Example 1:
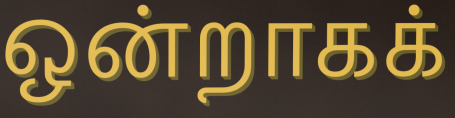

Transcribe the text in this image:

ஒன்றாகக்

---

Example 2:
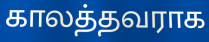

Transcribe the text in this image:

காலத்தவராக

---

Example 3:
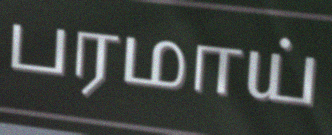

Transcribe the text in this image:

பரமாய்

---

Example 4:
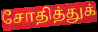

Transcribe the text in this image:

சோதித்துக்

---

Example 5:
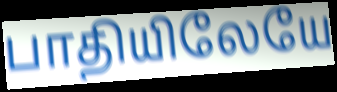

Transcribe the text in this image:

பாதியிலேயே